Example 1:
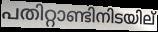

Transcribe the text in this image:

പതിറ്റാണ്ടിനിടയില്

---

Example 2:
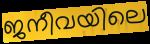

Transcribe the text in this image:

ജനീവയിലെ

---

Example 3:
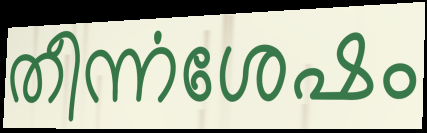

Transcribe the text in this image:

തീൎന്നശേഷം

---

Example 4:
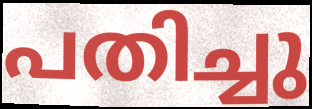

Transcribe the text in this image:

പതിച്ചു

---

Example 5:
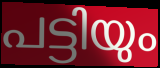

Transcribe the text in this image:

പട്ടിയും